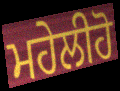
ਮਹੇਲੀਹੋ